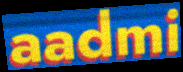
aadmi